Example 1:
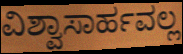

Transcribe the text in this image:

ವಿಶ್ವಾಸಾರ್ಹವಲ್ಲ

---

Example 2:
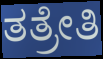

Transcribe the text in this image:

ತತ್ರೇತಿ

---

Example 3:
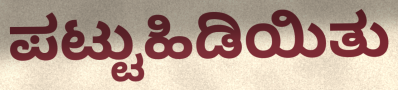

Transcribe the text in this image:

ಪಟ್ಟುಹಿಡಿಯಿತು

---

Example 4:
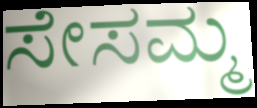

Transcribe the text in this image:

ಸೇಸಮ್ಮ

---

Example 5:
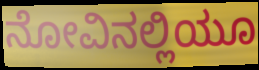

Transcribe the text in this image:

ನೋವಿನಲ್ಲಿಯೂ